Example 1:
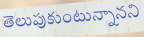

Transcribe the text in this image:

తెలుపుకుంటున్నానని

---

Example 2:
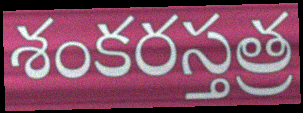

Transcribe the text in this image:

శంకరస్తత్ర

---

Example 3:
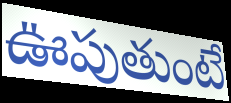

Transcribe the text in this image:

ఊపుతుంటే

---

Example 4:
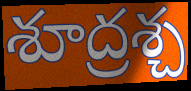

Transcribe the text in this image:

శూద్రశ్చ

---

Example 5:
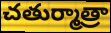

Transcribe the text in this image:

చతుర్మాత్రా